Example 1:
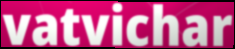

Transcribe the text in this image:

vatvichar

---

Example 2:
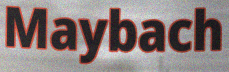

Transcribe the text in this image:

Maybach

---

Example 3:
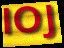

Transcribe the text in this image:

IOJ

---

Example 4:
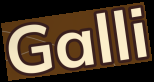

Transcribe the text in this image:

Galli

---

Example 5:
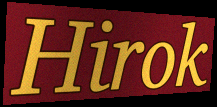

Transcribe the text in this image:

Hirok